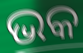
ଭକ